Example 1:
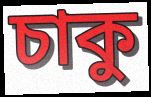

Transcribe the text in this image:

চাকু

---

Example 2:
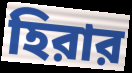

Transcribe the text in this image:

হিরার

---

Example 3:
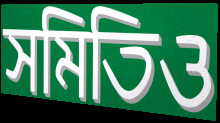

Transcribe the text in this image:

সমিতিও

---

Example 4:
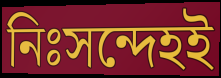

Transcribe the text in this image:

নিঃসন্দেহই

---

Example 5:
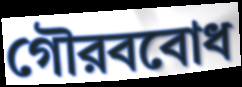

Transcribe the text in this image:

গৌরববোধ